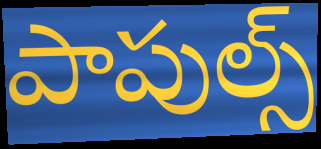
పాపుల్స్